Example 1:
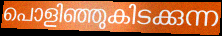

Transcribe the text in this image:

പൊളിഞ്ഞുകിടക്കുന്ന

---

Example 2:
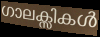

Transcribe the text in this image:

ഗാലക്സികൾ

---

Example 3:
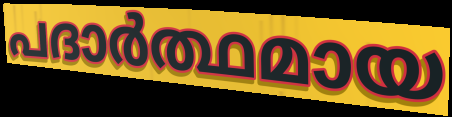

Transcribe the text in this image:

പദാർത്ഥമായ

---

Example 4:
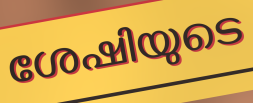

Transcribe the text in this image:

ശേഷിയുടെ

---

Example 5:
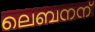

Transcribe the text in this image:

ലെബനന്